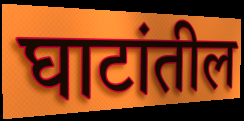
घाटांतील